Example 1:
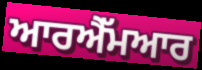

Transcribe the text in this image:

ਆਰਐੱਮਆਰ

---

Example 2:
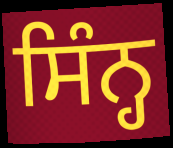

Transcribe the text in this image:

ਸਿੰਨ੍ਹ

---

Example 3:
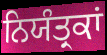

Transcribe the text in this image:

ਨਿਯੰਤ੍ਰਕਾਂ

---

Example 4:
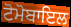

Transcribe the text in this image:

ਟੋਮੋਬਾਇਲ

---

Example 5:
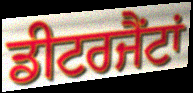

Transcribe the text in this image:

ਡੀਟਰਜੈਂਟਾਂ